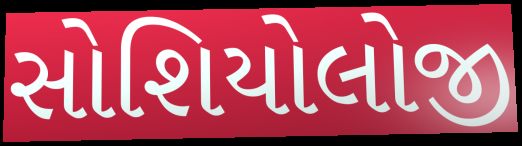
સોશિયોલોજી